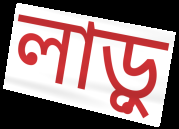
লাড়ু